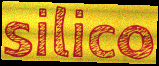
silico